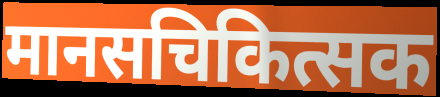
मानसचिकित्सक